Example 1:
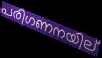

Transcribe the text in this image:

പരിഗണനയില്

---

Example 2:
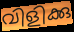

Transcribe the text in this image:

വിളിക്കു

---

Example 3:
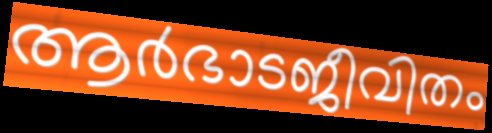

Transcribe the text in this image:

ആർഭാടജീവിതം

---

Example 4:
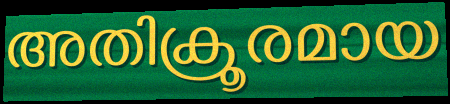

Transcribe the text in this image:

അതിക്രൂരമായ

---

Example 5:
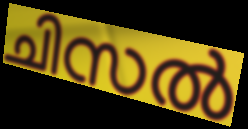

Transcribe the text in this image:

ചിസൽ